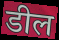
डील